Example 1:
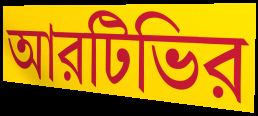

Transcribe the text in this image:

আরটিভির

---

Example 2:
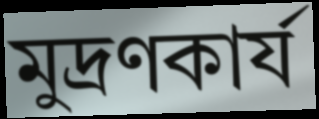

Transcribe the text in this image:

মুদ্রণকার্য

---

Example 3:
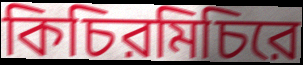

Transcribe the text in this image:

কিচিরমিচিরে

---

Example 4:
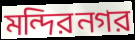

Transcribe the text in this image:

মন্দিরনগর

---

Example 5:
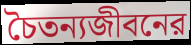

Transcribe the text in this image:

চৈতন্যজীবনের